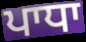
ਪਾਧਾ